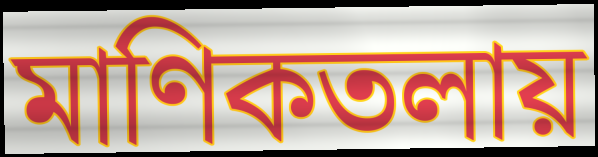
মাণিকতলায়